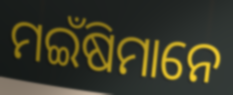
ମଇଁଷିମାନେ